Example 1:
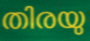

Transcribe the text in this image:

തിരയു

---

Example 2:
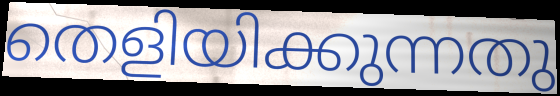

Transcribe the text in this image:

തെളിയിക്കുന്നതു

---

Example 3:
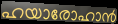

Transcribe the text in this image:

ഹയാരോഹാൻ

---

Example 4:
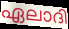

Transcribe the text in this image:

ഏലാദി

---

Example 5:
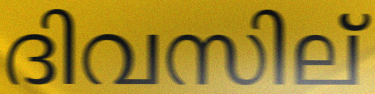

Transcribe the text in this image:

ദിവസില്